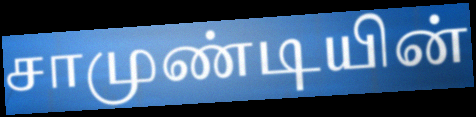
சாமுண்டியின்